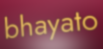
bhayato